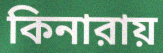
কিনারায়